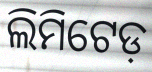
ଲିମିଟେଡ଼